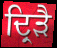
ਦ੍ਰਿੜੈ